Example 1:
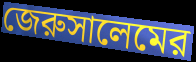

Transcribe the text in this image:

জেরুসালেমের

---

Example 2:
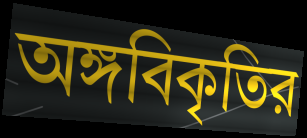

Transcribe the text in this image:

অঙ্গবিকৃতির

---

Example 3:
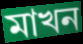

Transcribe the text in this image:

মাখন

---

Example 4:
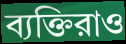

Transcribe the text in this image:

ব্যক্তিরাও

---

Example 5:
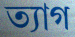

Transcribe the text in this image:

ত্যাগ